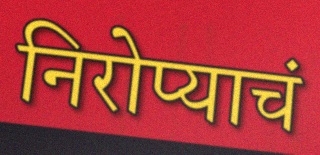
निरोप्याचं